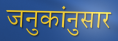
जनुकांनुसार